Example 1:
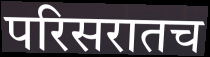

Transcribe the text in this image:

परिसरातच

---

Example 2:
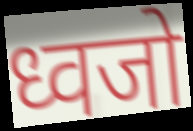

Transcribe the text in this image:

ध्वजो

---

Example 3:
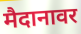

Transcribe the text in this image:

मैदानावर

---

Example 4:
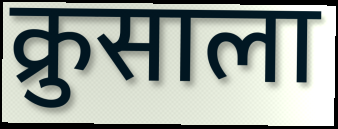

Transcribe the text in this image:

क्रुसाला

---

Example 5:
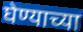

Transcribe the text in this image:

घेण्याच्या